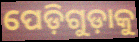
ପେଡ଼ିଗୁଡ଼ାକୁ